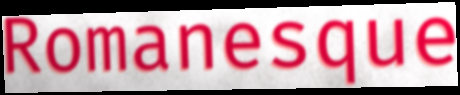
Romanesque